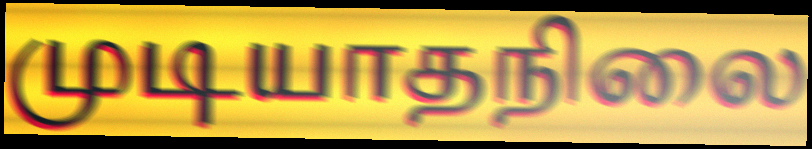
முடியாதநிலை